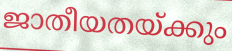
ജാതീയതയ്ക്കും